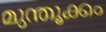
മുന്തൂക്കം